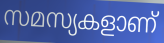
സമസ്യകളാണ്